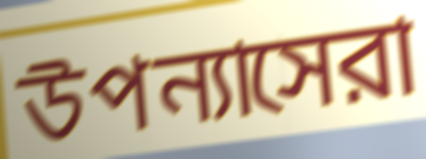
উপন্যাসেরা